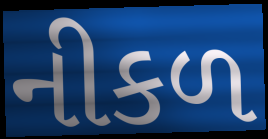
નીકળ